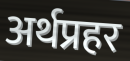
अर्थप्रहर